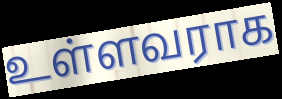
உள்ளவராக